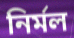
নির্মল